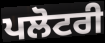
ਪਲੋਟਰੀ